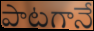
పాటగానే